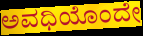
ಅವಧಿಯೊಂದೇ